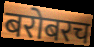
बरोबरच